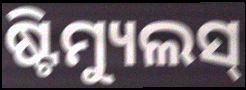
ଷ୍ଟିମ୍ୟୁଲସ୍